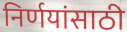
निर्णयांसाठी